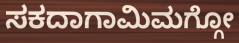
ಸಕದಾಗಾಮಿಮಗ್ಗೋ